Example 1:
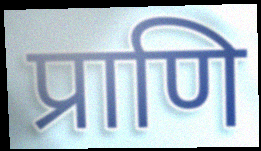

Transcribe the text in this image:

प्राणि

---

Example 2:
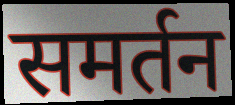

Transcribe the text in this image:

समर्तन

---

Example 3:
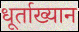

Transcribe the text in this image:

धूर्ताख्यान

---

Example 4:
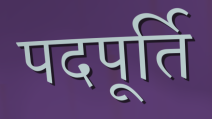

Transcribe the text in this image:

पदपूर्ति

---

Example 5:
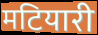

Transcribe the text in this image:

मटियारी